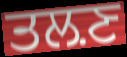
ਤਲ਼ਣ